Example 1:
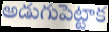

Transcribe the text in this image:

అడుగుపెట్టాక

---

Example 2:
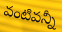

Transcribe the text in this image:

వంటివన్నీ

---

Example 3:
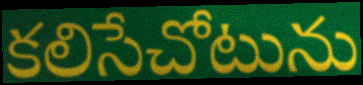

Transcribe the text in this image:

కలిసేచోటును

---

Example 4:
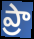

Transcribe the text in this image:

ప్రా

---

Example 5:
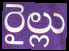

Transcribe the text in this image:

రైల్లు